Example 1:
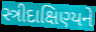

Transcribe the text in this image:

સ્ત્રીદાક્ષિણ્યને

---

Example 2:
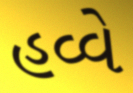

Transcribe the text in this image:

હવ્વે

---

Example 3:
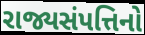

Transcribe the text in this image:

રાજ્યસંપત્તિનો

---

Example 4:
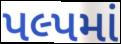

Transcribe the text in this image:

પલ્પમાં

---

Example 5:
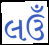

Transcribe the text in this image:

લઉઁ